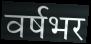
वर्षभर